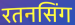
रतनसिंग